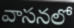
వాసనలో